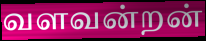
வளவன்றன்